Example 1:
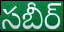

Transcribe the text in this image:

సబీర్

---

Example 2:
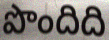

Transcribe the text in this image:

పొందిది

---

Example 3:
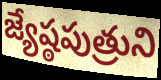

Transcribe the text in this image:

జ్యేష్ఠపుత్రుని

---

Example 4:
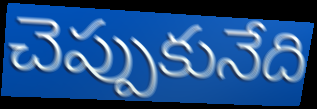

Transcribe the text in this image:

చెప్పుకునేది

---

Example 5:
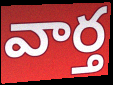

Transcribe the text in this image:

వార్త